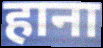
हाना